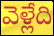
వెళ్లేది